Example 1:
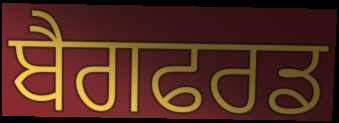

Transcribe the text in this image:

ਬੈਗਫਰਡ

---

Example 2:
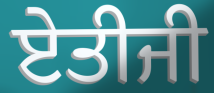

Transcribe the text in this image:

ਏਤੀਜੀ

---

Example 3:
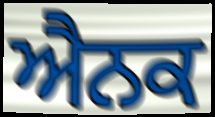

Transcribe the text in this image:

ਐਨਕ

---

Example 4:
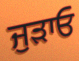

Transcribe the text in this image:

ਜੁੜਾਓ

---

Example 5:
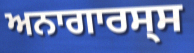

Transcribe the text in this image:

ਅਨਾਗਾਰਸ੍ਸ